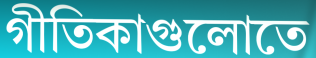
গীতিকাগুলোতে